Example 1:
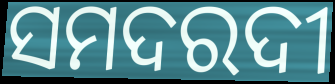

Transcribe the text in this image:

ସମଦରଦୀ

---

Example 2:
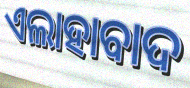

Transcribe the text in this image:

ଏଲାହାବାଦ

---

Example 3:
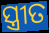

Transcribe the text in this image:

ସ୍ତ୍ରୀତ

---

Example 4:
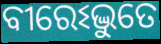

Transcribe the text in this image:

ବୀରେଽଦ୍ଭୁତେ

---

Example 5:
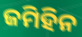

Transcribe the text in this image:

ଜମିହିନ